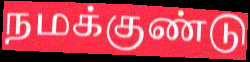
நமக்குண்டு